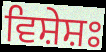
ਵਿਸ਼ੇਸ਼ਃ